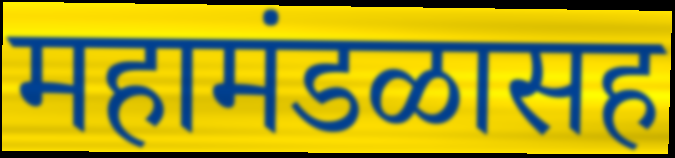
महामंडळासह